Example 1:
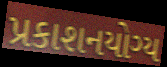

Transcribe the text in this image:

પ્રકાશનયોગ્ય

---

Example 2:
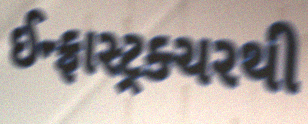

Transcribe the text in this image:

ઈન્ફ્રાસ્ટ્રક્ચરથી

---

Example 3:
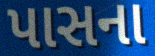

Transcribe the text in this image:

પાસના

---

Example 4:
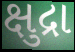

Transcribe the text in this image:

ક્ષુદ્રા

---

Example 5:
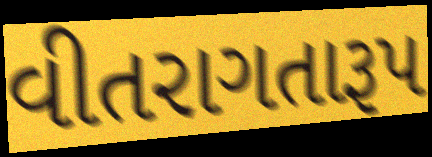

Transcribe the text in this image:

વીતરાગતારૂપ